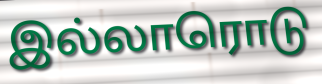
இல்லாரொடு